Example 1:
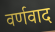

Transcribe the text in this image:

वर्णवाद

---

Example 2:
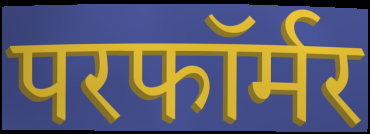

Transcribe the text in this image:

परफॉर्मर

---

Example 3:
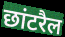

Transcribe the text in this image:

छांटरैल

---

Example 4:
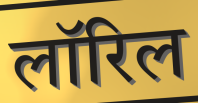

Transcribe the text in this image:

लॉरिल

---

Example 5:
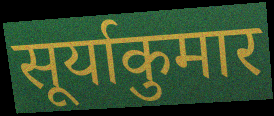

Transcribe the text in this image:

सूर्याकुमार